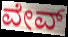
ವೇವ್